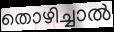
തൊഴിച്ചാൽ